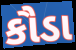
કૌડા